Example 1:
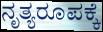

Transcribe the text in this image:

ನೃತ್ಯರೂಪಕ್ಕೆ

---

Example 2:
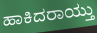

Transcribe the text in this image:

ಹಾಕಿದರಾಯ್ತು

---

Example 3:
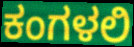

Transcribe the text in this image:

ಕಂಗಳಲಿ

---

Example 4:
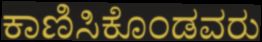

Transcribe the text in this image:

ಕಾಣಿಸಿಕೊಂಡವರು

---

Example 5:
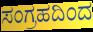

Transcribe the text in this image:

ಸಂಗ್ರಹದಿಂದ